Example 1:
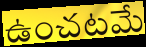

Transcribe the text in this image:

ఉంచటమే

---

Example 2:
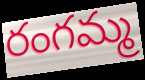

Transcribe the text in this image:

రంగమ్మ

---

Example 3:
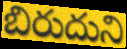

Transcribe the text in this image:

బిరుదుని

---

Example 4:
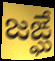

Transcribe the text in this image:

జఙ్ఘే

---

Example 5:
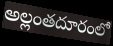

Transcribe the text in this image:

అల్లంతదూరంలో